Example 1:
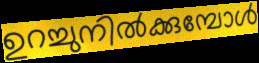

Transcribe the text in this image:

ഉറച്ചുനിൽക്കുമ്പോൾ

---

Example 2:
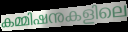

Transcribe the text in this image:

കമ്മിഷനുകളിലെ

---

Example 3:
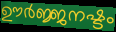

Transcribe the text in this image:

ഊർജ്ജനഷ്ടം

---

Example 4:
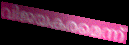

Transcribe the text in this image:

വിജയകരമെന്ന്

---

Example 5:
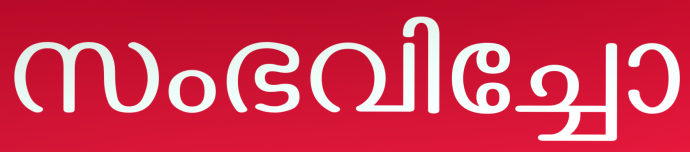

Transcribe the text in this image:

സംഭവിച്ചോ